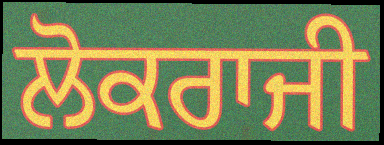
ਲੋਕਰਾਜੀ